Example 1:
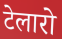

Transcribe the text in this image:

टेलारो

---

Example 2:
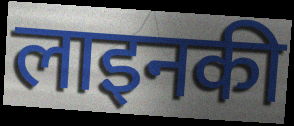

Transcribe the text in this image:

लाइनकी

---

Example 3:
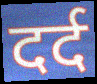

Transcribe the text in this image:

दर्द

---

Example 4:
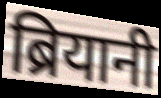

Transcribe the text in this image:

ब्रियानी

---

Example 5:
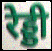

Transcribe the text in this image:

रेड्डी